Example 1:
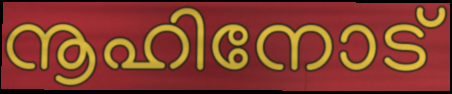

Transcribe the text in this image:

നൂഹിനോട്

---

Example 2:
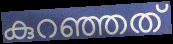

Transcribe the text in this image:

കുറഞ്ഞത്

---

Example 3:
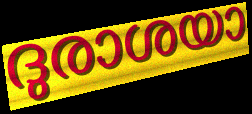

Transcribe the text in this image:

ദുരാശയാ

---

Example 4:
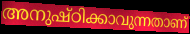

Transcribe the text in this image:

അനുഷ്ഠിക്കാവുന്നതാണ്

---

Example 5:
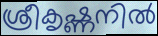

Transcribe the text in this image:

ശ്രീകൃഷ്ണനിൽ